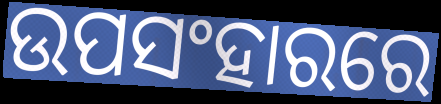
ଉପସଂହାରରେ